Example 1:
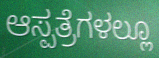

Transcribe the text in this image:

ಆಸ್ಪತ್ರೆಗಳಲ್ಲೂ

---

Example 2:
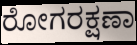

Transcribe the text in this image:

ರೋಗರಕ್ಷಣಾ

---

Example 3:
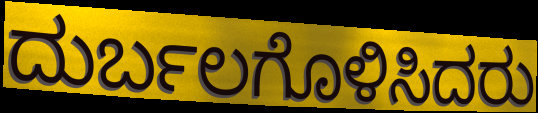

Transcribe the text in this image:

ದುರ್ಬಲಗೊಳಿಸಿದರು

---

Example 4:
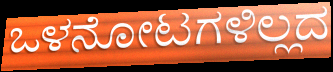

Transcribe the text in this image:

ಒಳನೋಟಗಳಿಲ್ಲದ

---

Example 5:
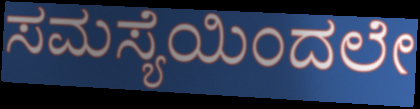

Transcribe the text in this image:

ಸಮಸ್ಯೆಯಿಂದಲೇ